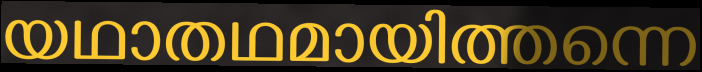
യഥാതഥമായിത്തന്നെ